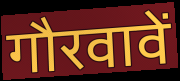
गौरवावें